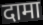
दामा